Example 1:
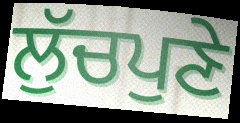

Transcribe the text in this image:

ਲੁੱਚਪੁਣੇ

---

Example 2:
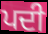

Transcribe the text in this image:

ਪਦੀ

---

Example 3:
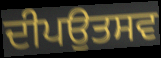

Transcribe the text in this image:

ਦੀਪਉਤਸਵ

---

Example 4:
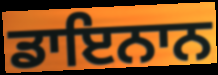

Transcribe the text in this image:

ਡਾਇਨਾਨ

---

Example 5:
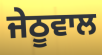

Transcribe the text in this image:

ਜੇਠੂਵਾਲ